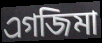
এগজিমা